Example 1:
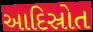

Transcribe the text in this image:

આદિસ્રોત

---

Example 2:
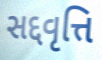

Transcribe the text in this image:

સદ્દવૃત્તિ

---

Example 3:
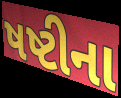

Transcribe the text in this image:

ષષ્ટીના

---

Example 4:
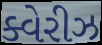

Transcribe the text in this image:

ક્વેરીઝ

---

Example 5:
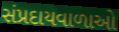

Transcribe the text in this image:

સંપ્રદાયવાળાઓ